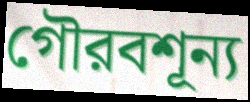
গৌরবশূন্য